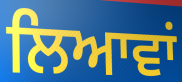
ਲਿਆਵਾਂ